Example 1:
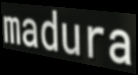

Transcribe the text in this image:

madura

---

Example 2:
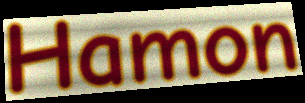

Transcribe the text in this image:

Hamon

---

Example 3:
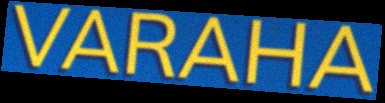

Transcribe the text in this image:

VARAHA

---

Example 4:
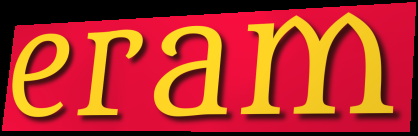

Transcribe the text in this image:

eram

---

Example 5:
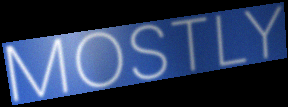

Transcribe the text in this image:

MOSTLY